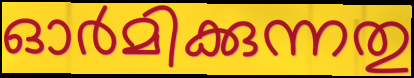
ഓർമിക്കുന്നതു